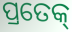
ପ୍ରତେକ୍